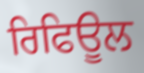
ਰਿਫਿਊਲ